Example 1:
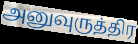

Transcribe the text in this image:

அனுவுருத்திர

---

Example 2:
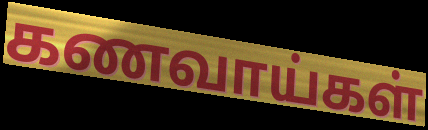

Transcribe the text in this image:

கணவாய்கள்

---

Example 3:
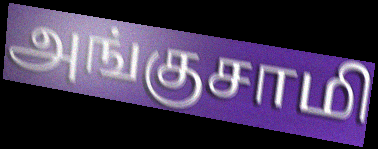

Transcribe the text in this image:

அங்குசாமி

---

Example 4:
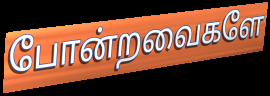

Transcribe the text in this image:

போன்றவைகளே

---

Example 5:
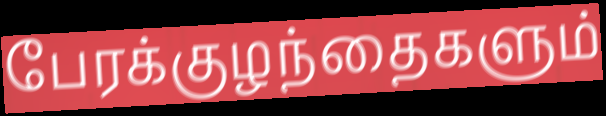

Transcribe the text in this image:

பேரக்குழந்தைகளும்